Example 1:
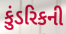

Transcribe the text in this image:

કુંડરિકની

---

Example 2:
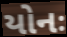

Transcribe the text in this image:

યોનઃ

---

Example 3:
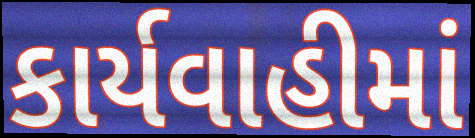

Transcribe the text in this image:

કાર્યવાહીમાં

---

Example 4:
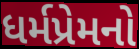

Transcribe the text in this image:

ધર્મપ્રેમનો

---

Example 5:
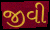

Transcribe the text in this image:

જીવી